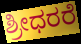
ಶ್ರೀಧರರೆ